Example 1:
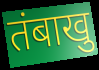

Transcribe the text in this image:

तंबाखु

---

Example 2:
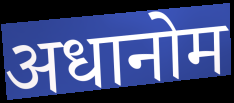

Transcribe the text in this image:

अधानोम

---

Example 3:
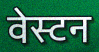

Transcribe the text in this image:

वेस्टन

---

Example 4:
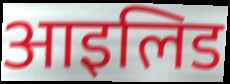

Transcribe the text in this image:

आइलिड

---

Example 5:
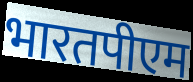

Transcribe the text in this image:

भारतपीएम